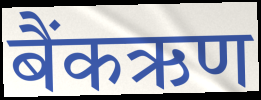
बैंकऋण